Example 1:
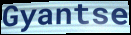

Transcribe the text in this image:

Gyantse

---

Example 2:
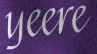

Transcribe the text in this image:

yeere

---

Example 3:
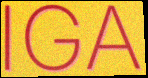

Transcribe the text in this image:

IGA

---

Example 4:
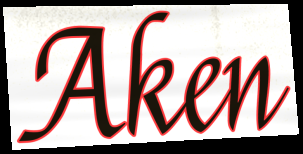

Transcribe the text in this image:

Aken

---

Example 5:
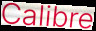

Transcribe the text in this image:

Calibre